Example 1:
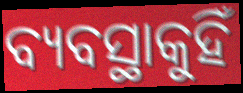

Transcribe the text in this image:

ବ୍ୟବସ୍ଥାକୁହିଁ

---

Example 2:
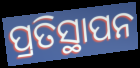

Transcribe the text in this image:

ପ୍ରତିସ୍ଥାପନ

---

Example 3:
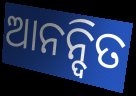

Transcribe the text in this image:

ଆନନ୍ଦିତ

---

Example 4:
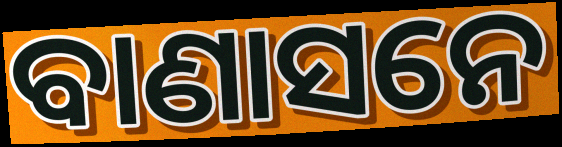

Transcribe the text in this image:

ବାଣାସନେ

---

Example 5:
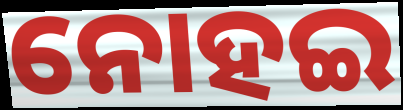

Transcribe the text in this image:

ନୋହଇ